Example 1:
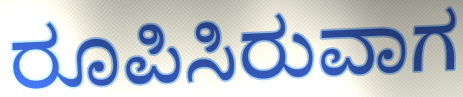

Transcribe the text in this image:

ರೂಪಿಸಿರುವಾಗ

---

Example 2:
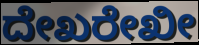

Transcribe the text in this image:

ದೇಖರೇಖೀ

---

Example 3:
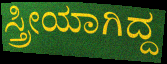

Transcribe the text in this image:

ಸ್ತ್ರೀಯಾಗಿದ್ದ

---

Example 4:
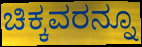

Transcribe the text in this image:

ಚಿಕ್ಕವರನ್ನೂ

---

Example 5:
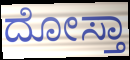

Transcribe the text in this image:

ದೋಸ್ತಾ